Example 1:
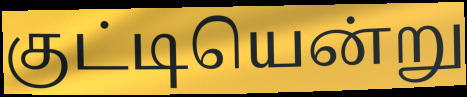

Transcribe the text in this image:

குட்டியென்று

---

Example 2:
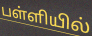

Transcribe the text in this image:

பள்ளியில்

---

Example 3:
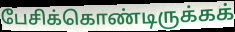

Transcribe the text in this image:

பேசிக்கொண்டிருக்கக்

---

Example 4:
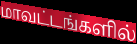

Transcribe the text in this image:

மாவட்டங்களில்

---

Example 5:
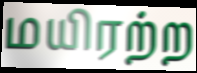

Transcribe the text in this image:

மயிரற்ற